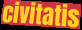
civitatis